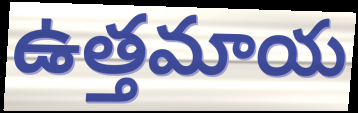
ఉత్తమాయ